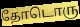
தோடொரு